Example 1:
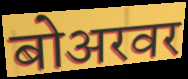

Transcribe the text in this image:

बोअरवर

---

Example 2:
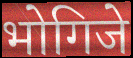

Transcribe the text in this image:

भोगिजे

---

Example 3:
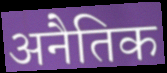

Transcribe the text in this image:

अनैतिक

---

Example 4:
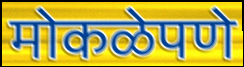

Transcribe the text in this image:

मोकळेपणे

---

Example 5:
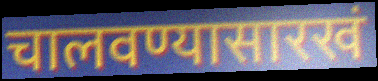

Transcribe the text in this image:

चालवण्यासारखं